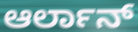
ಆರ್ಲಾನ್